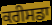
ਕਰੀਸਡਾ